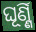
ଘୂର୍ଣ୍ଣି